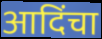
आदिंचा